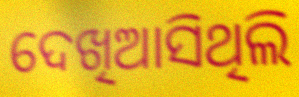
ଦେଖିଆସିଥିଲି